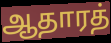
ஆதாரத்